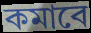
কমাবে